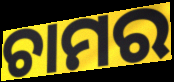
ଚାମର